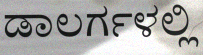
ಡಾಲರ್ಗಳಲ್ಲಿ